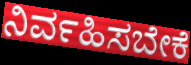
ನಿರ್ವಹಿಸಬೇಕೆ